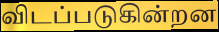
விடப்படுகின்றன